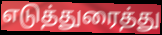
எடுத்துரைத்து